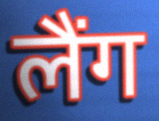
लैंग